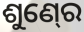
ଶୁଣ୍‍ରେ